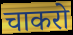
चाकरो